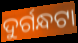
ଦୁର୍ଗନ୍ଧଟା